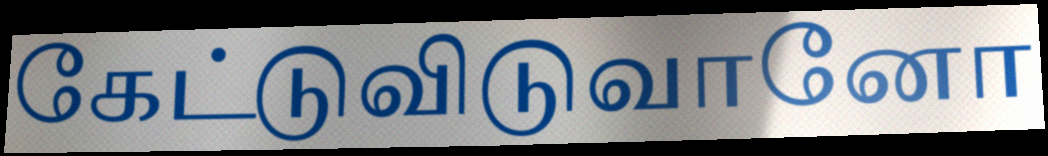
கேட்டுவிடுவானோ